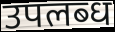
उपलब्‍ध